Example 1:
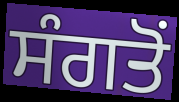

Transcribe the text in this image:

ਸੰਗਤੋਂ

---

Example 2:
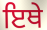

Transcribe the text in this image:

ਇਥੇ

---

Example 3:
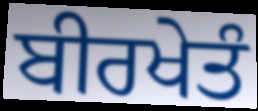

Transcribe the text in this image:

ਬੀਰਖੇਤੰ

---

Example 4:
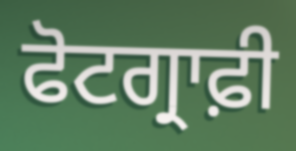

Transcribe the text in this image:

ਫੋਟਗ੍ਰਾਫ਼ੀ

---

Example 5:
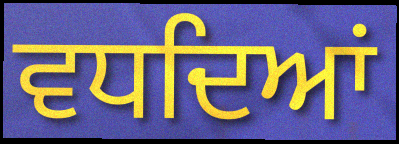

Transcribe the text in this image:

ਵਧਦਿਆਂ